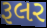
રૂલર